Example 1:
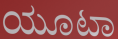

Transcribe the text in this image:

ಯೂಟಾ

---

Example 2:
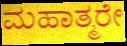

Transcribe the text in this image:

ಮಹಾತ್ಮರೇ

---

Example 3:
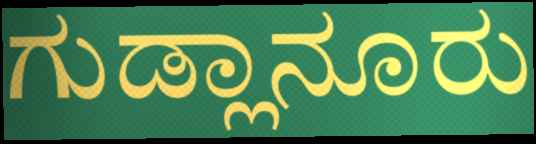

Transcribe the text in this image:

ಗುಡ್ಲಾನೂರು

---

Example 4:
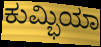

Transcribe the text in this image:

ಕುಮ್ಭಿಯಾ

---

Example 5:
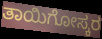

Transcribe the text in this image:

ತಾಯಿಗೋಸ್ಕರ